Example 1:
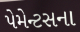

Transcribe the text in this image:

પેમેન્ટસના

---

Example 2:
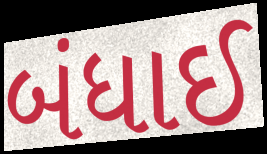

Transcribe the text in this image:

બંધાઈ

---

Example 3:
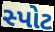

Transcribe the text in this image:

સ્પોટ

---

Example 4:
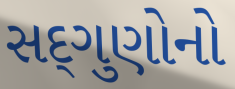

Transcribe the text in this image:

સદ્‌ગુણોનો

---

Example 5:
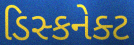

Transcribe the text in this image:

ડિસ્કનેક્ટ